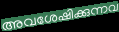
അവശേഷിക്കുന്നവ